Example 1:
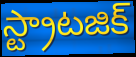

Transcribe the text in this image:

స్ట్రాటజిక్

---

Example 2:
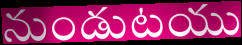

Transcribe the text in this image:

నుండుటయు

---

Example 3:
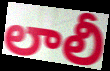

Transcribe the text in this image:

లాలీ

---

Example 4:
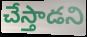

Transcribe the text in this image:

చేస్తాడని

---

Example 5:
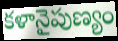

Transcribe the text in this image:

కళానైపుణ్యం